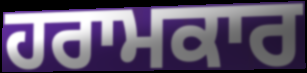
ਹਰਾਮਕਾਰ